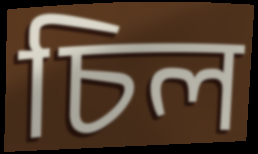
চিল